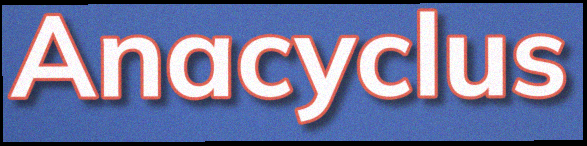
Anacyclus